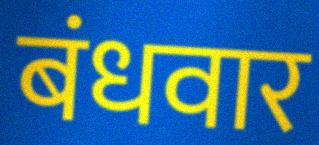
बंधवार